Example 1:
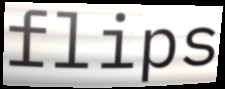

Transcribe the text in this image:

flips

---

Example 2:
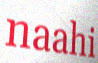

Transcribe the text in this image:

naahi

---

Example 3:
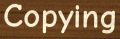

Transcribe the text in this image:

Copying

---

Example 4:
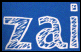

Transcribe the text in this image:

zai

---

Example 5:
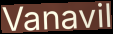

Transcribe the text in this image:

Vanavil